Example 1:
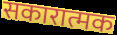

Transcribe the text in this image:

सकारात्‍मक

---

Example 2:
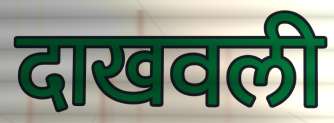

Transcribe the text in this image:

दाखवली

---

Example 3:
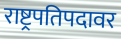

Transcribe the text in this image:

राष्ट्रपतिपदावर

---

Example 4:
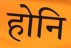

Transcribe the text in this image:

होनि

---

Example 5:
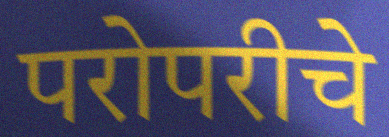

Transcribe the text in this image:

परोपरीचे